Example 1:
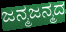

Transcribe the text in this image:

ಜನ್ಮಜನ್ಮದ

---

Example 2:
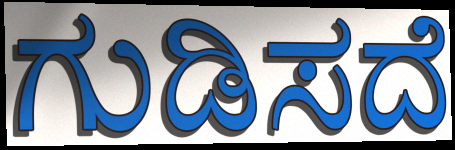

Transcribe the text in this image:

ಗುಡಿಸದೆ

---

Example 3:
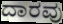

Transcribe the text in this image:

ದಾರವು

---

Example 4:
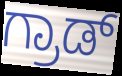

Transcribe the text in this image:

ಗ್ರಾಡ್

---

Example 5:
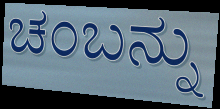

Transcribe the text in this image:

ಚಂಬನ್ನು